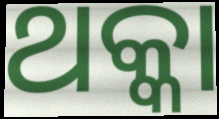
ଥକ୍କା